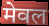
मेवल